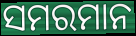
ସମରମାନ